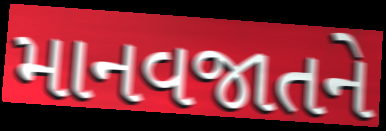
માનવજાતને